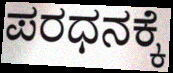
ಪರಧನಕ್ಕೆ